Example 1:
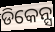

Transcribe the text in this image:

ଡିକେନ୍ସ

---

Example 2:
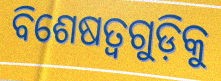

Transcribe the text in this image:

ବିଶେଷତ୍ୱଗୁଡ଼ିକୁ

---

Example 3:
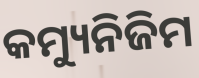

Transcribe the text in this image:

କମ୍ୟୁନିଜିମ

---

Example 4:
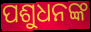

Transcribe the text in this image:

ପଶୁଧନଙ୍କ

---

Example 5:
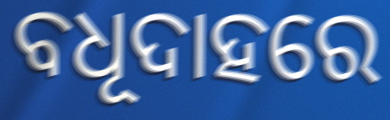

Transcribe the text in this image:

ବଧୂଦାହରେ